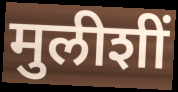
मुलीशीं